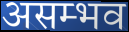
असम्भव